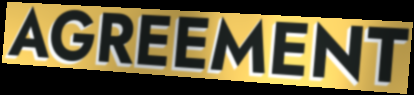
AGREEMENT